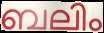
ബലിം